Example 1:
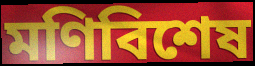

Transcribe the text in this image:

মণিবিশেষ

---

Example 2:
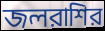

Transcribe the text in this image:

জলরাশির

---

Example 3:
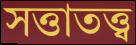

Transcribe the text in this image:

সত্তাতত্ত্ব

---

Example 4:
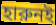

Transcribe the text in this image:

হারুনই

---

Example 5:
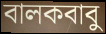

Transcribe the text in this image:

বালকবাবু